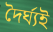
দৈৰ্ঘ্যই